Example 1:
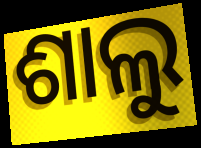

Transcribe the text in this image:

ଶାଲୁ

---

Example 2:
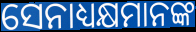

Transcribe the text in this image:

ସେନାଧ୍ୟକ୍ଷମାନଙ୍କ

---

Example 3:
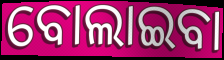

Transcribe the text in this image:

ବୋଲାଇବା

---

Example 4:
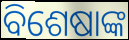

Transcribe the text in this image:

ବିଶେଷାଙ୍କ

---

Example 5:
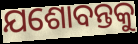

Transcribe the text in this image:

ଯଶୋବନ୍ତକୁ